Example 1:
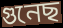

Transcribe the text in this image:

গুনেছ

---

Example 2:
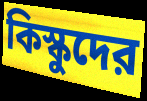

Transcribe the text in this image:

কিস্কুদের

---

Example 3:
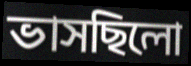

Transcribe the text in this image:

ভাসছিলো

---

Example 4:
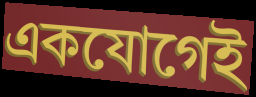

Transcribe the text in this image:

একযোগেই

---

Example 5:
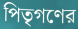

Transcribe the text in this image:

পিতৃগণের